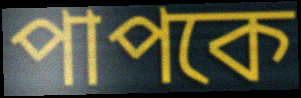
পাপকে